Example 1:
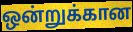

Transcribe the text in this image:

ஒன்றுக்கான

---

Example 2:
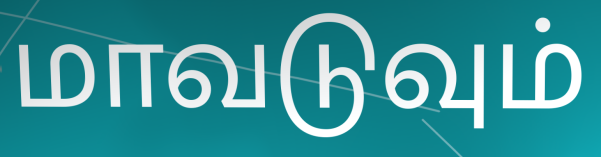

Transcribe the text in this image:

மாவடுவும்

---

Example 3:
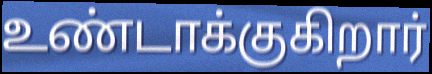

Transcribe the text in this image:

உண்டாக்குகிறார்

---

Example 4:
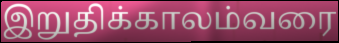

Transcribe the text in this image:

இறுதிக்காலம்வரை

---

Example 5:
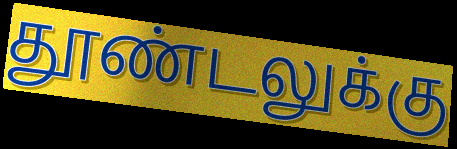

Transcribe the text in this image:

தூண்டலுக்கு